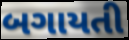
બગાયતી